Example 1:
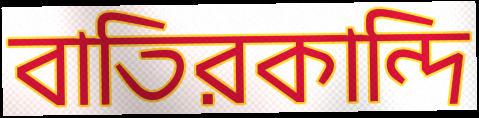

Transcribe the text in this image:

বাতিরকান্দি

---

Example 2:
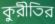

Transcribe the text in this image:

কুরীতির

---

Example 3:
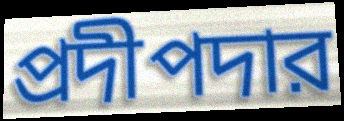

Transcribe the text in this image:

প্রদীপদার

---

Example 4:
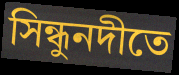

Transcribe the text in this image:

সিন্ধুনদীতে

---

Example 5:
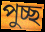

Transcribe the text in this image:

পুচ্ছ